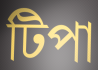
টিপা